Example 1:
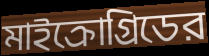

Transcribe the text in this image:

মাইক্রোগ্রিডের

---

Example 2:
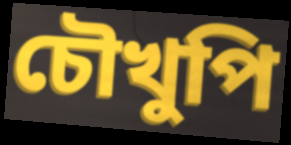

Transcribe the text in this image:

চৌখুপি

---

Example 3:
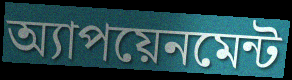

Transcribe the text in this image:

অ্যাপয়েনমেন্ট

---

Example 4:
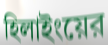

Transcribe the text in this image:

হিলাইংয়ের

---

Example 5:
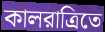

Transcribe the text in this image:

কালরাত্রিতে